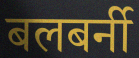
बलबर्नी